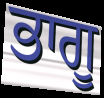
ਭਾਗੂ